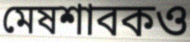
মেষশাবকও